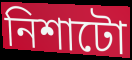
নিশাটো